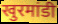
खुरमांडी